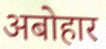
अबोहार